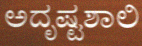
ಅದೃಷ್ಟಶಾಲಿ